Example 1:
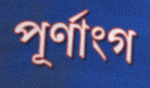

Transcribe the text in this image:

পূৰ্ণাংগ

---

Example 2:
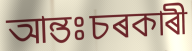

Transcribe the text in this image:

আন্তঃচৰকাৰী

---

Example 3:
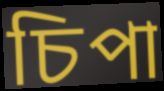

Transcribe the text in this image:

চিপা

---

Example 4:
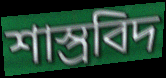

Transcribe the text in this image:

শাস্ত্ৰবিদ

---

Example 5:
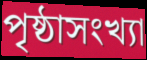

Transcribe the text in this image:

পৃষ্ঠাসংখ্যা